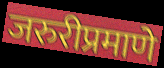
जरुरीप्रमाणे